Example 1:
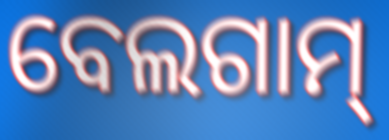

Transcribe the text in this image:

ବେଲଗାମ୍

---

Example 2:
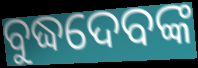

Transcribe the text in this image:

ବୁଦ୍ଧଦେବଙ୍କ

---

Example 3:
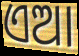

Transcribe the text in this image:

ଏଆ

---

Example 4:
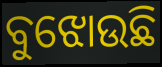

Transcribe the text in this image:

ବୁଝୋଉଛି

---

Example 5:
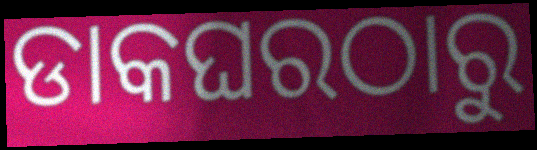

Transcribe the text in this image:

ଡାକଘରଠାରୁ